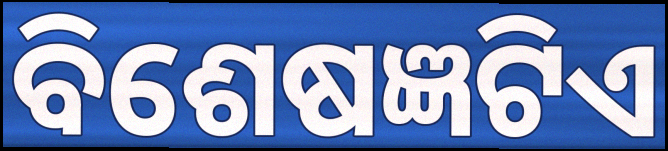
ବିଶେଷଜ୍ଞଟିଏ